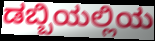
ಡಬ್ಬಿಯಲ್ಲಿಯ